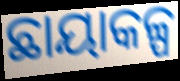
ଛାୟାକଳ୍ପ